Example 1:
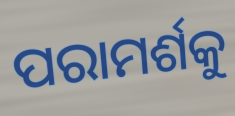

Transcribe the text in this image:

ପରାମର୍ଶକୁ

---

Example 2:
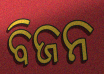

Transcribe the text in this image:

ବିଜନ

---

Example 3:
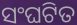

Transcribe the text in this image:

ସଂଘଟିତ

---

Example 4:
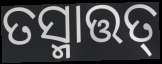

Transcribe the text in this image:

ତସ୍ମାତ୍ତତ୍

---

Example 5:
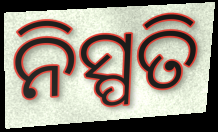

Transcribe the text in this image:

ନିସ୍ପତି